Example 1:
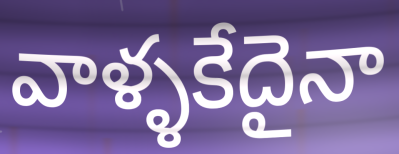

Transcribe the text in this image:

వాళ్ళకేదైనా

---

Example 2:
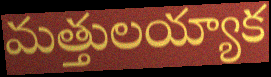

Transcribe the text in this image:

మత్తులయ్యాక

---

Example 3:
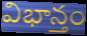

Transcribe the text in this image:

విభాన్తం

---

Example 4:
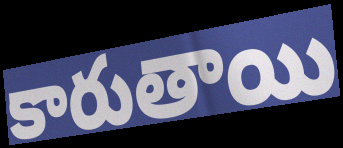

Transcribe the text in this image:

కారుతాయి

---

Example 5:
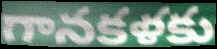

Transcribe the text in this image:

గానకళకు